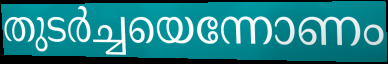
തുടർച്ചയെന്നോണം